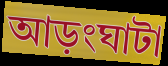
আড়ংঘাটা